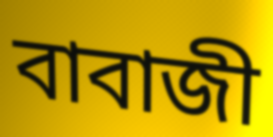
বাবাজী